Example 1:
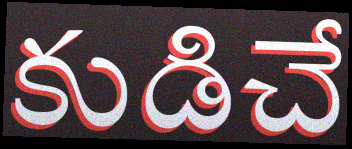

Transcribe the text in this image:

కుడిచే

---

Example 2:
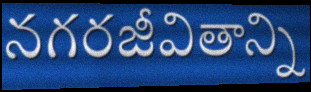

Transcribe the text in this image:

నగరజీవితాన్ని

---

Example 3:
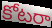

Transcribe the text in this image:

కోటరా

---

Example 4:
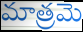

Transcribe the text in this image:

మాత్రమె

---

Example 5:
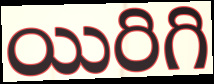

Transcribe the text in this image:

యిరిగి